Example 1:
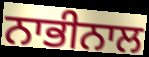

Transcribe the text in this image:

ਨਾਭੀਨਾਲ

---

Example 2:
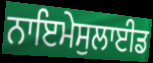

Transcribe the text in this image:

ਨਾਇਮੇਸੁਲਾਈਡ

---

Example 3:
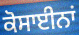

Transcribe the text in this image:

ਕੋਸਾਈਨਾਂ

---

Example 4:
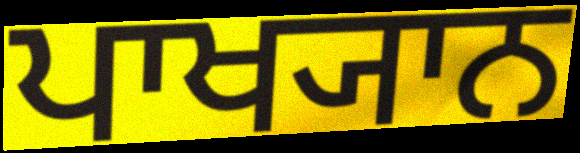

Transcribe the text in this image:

ਪਾਖ੍ਯਾਨ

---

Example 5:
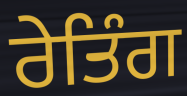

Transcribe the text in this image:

ਰੇਤਿੰਗ